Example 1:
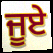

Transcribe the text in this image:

ਜੂਏ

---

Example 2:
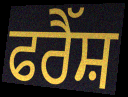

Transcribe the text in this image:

ਫਰੈੱਸ਼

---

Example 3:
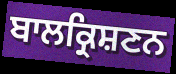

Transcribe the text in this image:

ਬਾਲਕ੍ਰਿਸ਼ਣਨ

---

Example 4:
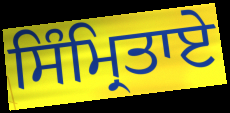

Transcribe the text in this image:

ਸਿੰਮ੍ਰਿਤਾਏ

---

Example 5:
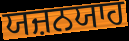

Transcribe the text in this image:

ਯਜ਼ਨਯਾਹ